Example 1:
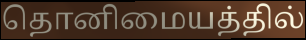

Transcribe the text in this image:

தொனிமையத்தில்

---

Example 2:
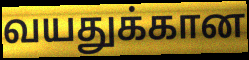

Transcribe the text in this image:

வயதுக்கான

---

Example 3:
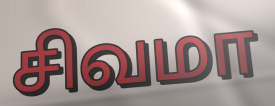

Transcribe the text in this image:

சிவமா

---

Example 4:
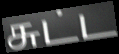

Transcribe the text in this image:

சுட்ட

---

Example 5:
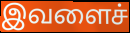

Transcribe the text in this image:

இவளைச்